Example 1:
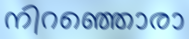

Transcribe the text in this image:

നിറഞ്ഞൊരാ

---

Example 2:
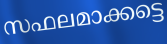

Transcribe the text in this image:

സഫലമാക്കട്ടെ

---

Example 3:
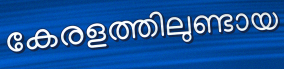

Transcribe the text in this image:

കേരളത്തിലുണ്ടായ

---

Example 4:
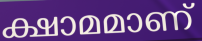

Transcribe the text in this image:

ക്ഷാമമാണ്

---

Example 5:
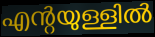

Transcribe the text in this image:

എന്റയുള്ളിൽ